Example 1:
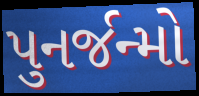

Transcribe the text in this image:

પુનર્જન્મો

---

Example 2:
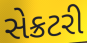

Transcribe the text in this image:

સેક્રટરી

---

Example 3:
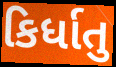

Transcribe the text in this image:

કિર્ધાતુ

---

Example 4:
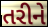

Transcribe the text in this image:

તરીને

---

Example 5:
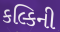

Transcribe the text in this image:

કલ્કિની